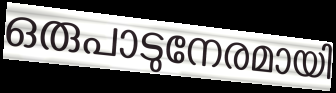
ഒരുപാടുനേരമായി